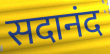
सदानंद